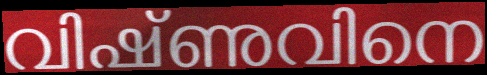
വിഷ്‌ണുവിനെ